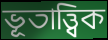
ভূতাত্ত্বিক